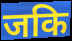
जकि